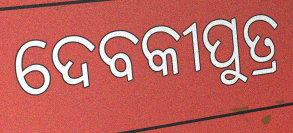
ଦେବକୀପୁତ୍ର